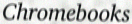
Chromebooks